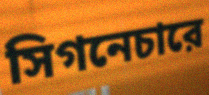
সিগনেচারে